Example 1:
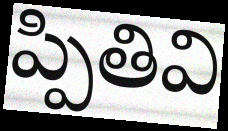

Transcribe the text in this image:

ప్పితివి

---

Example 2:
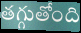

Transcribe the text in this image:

తగ్గుతోంది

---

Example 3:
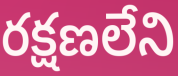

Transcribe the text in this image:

రక్షణలేని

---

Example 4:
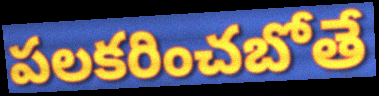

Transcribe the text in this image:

పలకరించబోతే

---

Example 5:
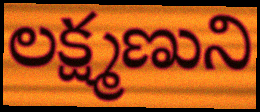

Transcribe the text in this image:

లక్ష్మణుని